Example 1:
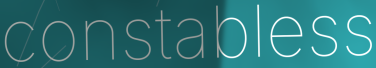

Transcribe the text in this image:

constabless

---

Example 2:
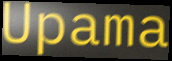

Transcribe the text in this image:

Upama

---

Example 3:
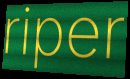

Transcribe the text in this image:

riper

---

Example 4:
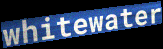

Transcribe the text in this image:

whitewater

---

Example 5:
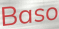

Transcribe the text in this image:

Baso